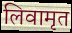
लिवामृत